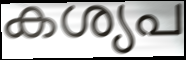
കശ്യപ